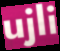
ujli